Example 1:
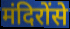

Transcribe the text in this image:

मंदिरोंसे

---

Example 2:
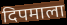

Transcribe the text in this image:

दिपमाला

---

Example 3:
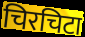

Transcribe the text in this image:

चिरचिटा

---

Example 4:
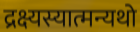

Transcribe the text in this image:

द्रक्ष्यस्यात्मन्यथो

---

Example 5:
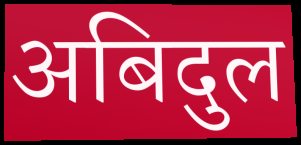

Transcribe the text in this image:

अबिदुल